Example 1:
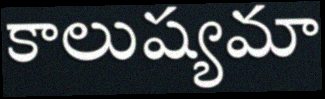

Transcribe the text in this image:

కాలుష్యమా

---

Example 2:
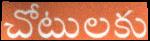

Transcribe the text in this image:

చోటులకు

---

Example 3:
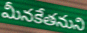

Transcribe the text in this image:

మీనకేతనుని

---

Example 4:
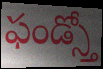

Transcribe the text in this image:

ఫండ్స్తో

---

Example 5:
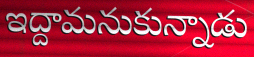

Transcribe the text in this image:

ఇద్దామనుకున్నాడు